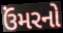
ઉંમરનો